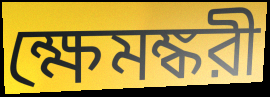
ক্ষেমঙ্করী